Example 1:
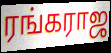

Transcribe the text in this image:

ரங்கராஜ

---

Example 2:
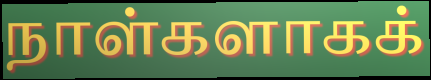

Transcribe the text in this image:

நாள்களாகக்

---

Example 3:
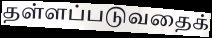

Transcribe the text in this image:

தள்ளப்படுவதைக்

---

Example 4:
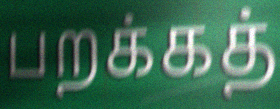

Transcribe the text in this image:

பறக்கத்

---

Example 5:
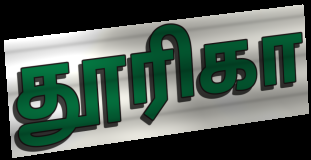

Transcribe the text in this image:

தூரிகா